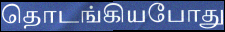
தொடங்கியபோது